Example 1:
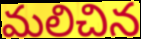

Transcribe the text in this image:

మలిచిన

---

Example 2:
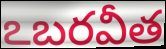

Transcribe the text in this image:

ఽబరవీత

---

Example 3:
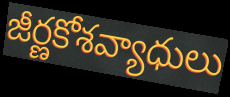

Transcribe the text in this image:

జీర్ణకోశవ్యాధులు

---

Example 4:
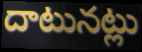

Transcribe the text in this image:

దాటునట్లు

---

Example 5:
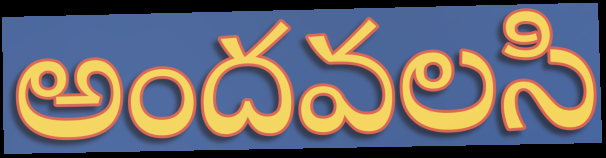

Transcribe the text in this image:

అందవలసి